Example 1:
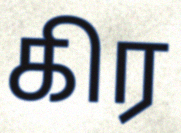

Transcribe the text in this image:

கிர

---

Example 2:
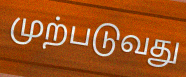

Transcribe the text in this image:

முற்படுவது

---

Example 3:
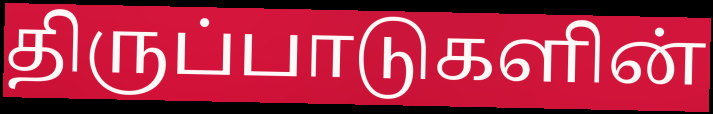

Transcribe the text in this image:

திருப்பாடுகளின்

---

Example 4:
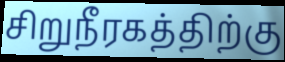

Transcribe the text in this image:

சிறுநீரகத்திற்கு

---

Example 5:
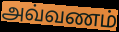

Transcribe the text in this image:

அவ்வணம்